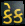
કેક